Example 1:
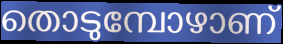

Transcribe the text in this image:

തൊടുമ്പോഴാണ്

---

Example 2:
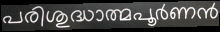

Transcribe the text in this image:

പരിശുദ്ധാത്മപൂർണൻ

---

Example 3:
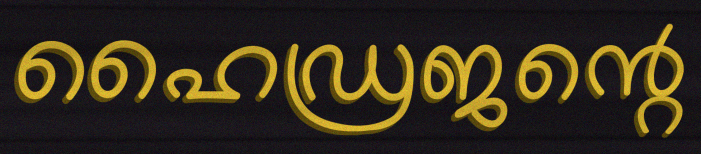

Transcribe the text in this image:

ഹൈഡ്രജന്റെ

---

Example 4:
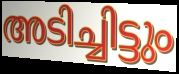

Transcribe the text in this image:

അടിച്ചിട്ടും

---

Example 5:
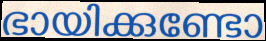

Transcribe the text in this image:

ഭായിക്കുണ്ടോ